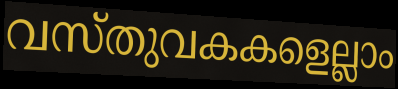
വസ്തുവകകളെല്ലാം